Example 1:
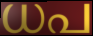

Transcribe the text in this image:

ധപ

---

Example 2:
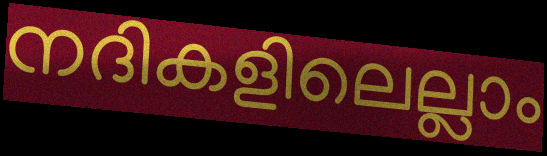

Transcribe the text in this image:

നദികളിലെല്ലാം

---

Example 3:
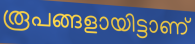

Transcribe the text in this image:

രൂപങ്ങളായിട്ടാണ്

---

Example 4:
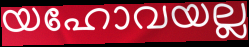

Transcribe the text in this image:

യഹോവയല്ല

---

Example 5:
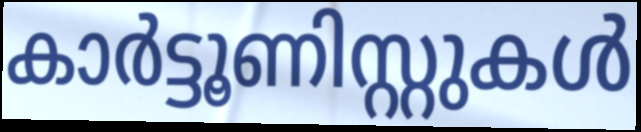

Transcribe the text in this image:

കാർട്ടൂണിസ്റ്റുകൾ